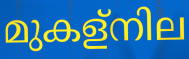
മുകള്നില